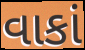
વાકાં